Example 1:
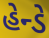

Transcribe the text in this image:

હેન્ડે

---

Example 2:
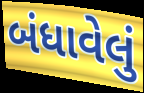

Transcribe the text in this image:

બંધાવેલું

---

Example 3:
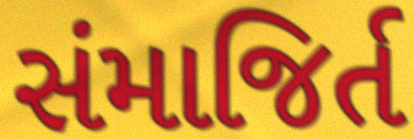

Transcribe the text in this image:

સંમાજિર્ત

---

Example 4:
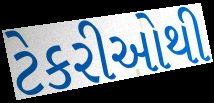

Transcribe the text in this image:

ટેકરીઓથી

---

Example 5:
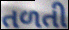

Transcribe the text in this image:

તળતી